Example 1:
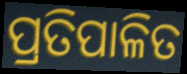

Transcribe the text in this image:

ପ୍ରତିପାଳିତ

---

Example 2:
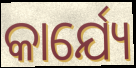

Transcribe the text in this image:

କାର୍ଯ୍ୟେ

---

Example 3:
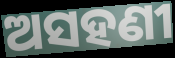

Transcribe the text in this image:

ଅସହଣୀ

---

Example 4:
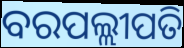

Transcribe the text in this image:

ବରପଲ୍ଲୀପତି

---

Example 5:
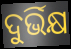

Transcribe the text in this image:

ଦୁର୍ଭିକ୍ଷ